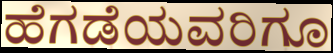
ಹೆಗಡೆಯವರಿಗೂ